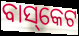
ବାସ୍‌କେଟ